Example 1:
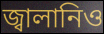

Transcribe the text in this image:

জ্বালানিও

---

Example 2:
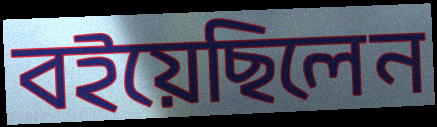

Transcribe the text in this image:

বইয়েছিলেন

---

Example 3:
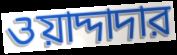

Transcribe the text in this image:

ওয়াদ্দাদার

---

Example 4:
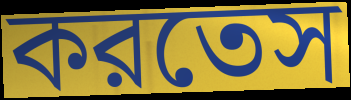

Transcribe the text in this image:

করতেস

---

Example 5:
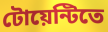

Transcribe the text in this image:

টোয়েন্টিতে